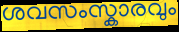
ശവസംസ്കാരവും